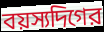
বয়স্যদিগের